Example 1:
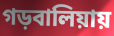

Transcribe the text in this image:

গড়বালিয়ায়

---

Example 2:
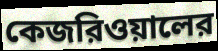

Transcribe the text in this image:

কেজরিওয়ালের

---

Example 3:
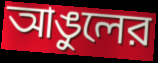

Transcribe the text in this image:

আঙুলের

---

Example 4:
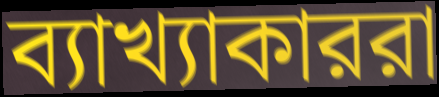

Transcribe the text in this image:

ব্যাখ্যাকাররা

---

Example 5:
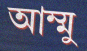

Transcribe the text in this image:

আম্মু